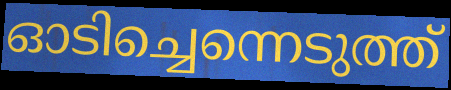
ഓടിച്ചെന്നെടുത്ത്